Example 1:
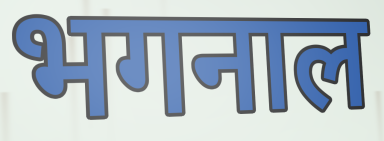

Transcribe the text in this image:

भगनाल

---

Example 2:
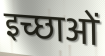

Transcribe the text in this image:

इच्छाओं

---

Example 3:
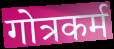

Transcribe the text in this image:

गोत्रकर्म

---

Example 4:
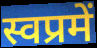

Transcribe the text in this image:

स्वप्रमें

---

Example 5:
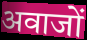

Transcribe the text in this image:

अवाजों